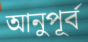
আনুপূর্ব